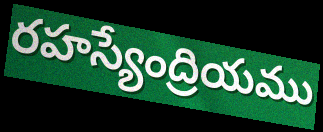
రహస్యేంద్రియము